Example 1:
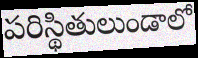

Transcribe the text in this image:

పరిస్థితులుండాలో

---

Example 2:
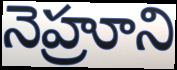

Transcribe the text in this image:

నెహ్రూని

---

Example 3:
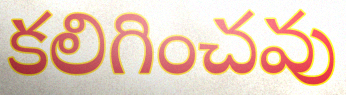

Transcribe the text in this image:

కలిగించవు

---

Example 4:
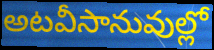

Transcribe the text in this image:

అటవీసానువుల్లో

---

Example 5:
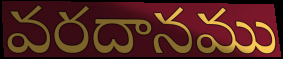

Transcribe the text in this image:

వరదానము